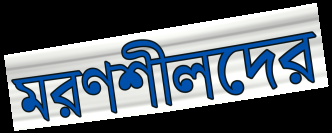
মরণশীলদের